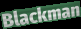
Blackman